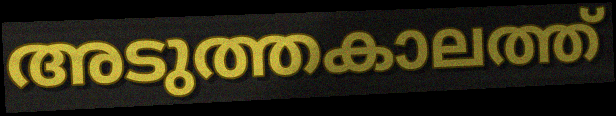
അടുത്തകാലത്ത്